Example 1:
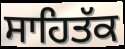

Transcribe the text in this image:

ਸਾਹਿਤੱਕ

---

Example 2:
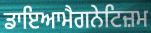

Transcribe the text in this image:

ਡਾਇਆਮੈਗਨੇਟਿਜ਼ਮ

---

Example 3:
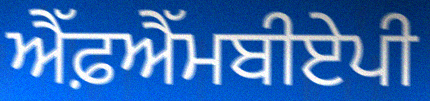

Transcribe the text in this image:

ਐੱਫ਼ਐੱਮਬੀਏਪੀ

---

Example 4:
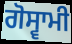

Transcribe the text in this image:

ਗੋਸ੍ਵਾਮੀ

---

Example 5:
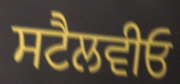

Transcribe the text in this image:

ਸਟੈਲਵੀਓ